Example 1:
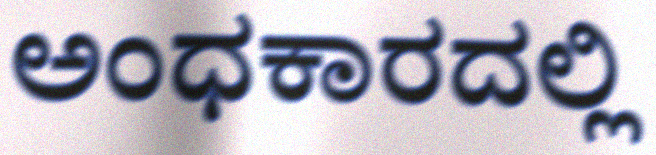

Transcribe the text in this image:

ಅಂಧಕಾರದಲ್ಲಿ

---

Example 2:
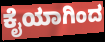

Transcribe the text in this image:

ಕೈಯಾಗಿಂದ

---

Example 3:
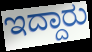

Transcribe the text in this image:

ಇದ್ದಾರು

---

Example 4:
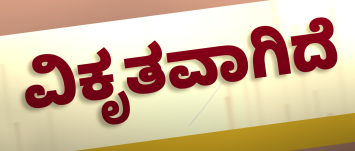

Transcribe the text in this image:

ವಿಕೃತವಾಗಿದೆ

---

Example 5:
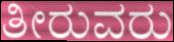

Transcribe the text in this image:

ತೀರುವರು